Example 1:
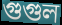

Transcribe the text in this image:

গুগুল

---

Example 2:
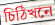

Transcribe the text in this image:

চিঠিখনে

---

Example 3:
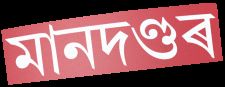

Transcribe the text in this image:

মানদণ্ডৰ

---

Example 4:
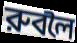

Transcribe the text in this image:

ৰুবলৈ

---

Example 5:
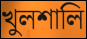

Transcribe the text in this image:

খুলশালি